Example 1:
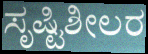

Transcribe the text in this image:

ಸೃಷ್ಟಿಶೀಲರ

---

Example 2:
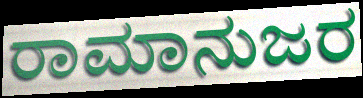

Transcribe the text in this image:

ರಾಮಾನುಜರ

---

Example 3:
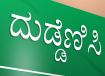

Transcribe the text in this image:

ದುಡ್ಡೆಣಿಸಿ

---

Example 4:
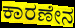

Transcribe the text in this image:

ಕಾರಣೇನ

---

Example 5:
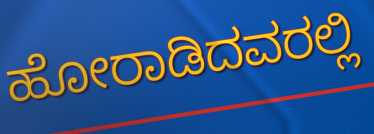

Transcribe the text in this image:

ಹೋರಾಡಿದವರಲ್ಲಿ